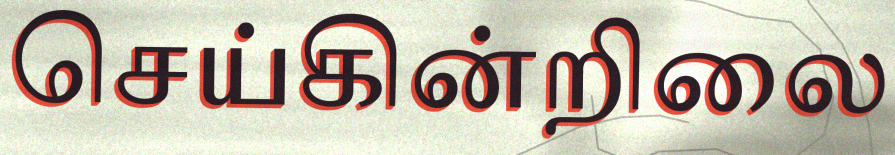
செய்கின்றிலை